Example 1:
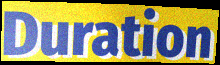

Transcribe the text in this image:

Duration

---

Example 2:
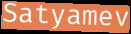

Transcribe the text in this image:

Satyamev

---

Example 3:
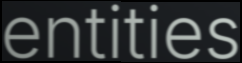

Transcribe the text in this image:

entities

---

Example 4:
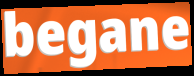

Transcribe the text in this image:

begane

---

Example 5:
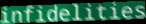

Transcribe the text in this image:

infidelities